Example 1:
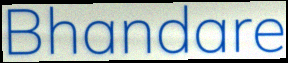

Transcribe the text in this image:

Bhandare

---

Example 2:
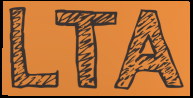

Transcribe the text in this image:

LTA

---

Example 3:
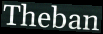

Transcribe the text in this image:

Theban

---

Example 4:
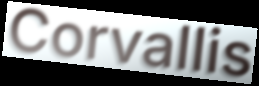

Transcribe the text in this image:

Corvallis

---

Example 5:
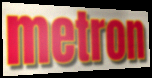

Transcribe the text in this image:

metron